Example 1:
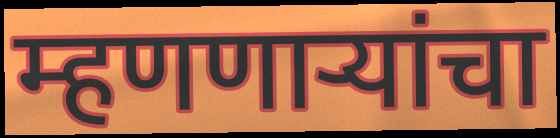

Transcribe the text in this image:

म्हणणाऱ्यांचा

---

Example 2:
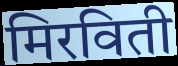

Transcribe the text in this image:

मिरविती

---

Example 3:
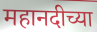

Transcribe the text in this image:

महानदीच्या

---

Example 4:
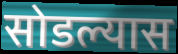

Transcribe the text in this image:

सोडल्यास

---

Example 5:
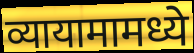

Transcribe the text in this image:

व्यायामामध्ये